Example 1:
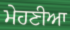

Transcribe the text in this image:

ਮੇਹਣੀਆ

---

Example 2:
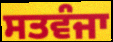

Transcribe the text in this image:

ਸਤਵੰਜਾ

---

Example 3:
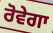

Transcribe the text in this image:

ਰੋਵੇਗਾ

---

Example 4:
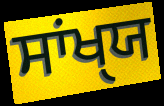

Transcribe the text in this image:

ਸਾਂਖੑਯ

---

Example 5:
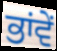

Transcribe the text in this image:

ਭਾਂਵੇਂ